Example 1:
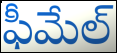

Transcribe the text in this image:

ఫీమేల్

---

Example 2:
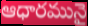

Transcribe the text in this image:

ఆధారమునై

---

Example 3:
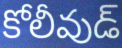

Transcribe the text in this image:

కోలీవుడ్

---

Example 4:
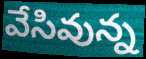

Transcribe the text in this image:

వేసివున్న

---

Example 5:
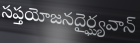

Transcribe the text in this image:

సప్తయోజనదైర్ఘ్యవాన్